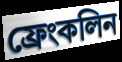
ফ্ৰেংকলিন